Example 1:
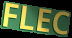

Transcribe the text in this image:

FLEC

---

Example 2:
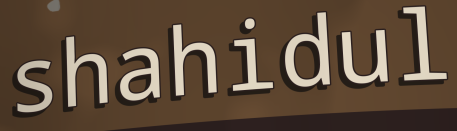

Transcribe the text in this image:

shahidul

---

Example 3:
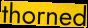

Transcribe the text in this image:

thorned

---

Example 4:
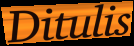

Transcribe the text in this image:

Ditulis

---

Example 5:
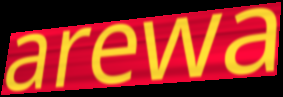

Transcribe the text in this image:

arewa